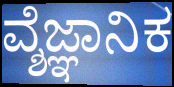
ವ್ಶೆಜ್ಞಾನಿಕ